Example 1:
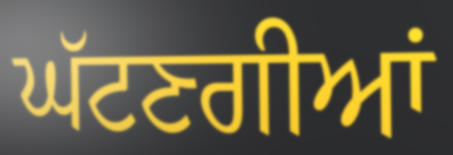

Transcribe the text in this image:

ਘੱਟਣਗੀਆਂ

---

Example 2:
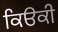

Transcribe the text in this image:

ਕਿੳਕੀ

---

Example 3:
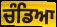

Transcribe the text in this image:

ਚੰਡਿਆ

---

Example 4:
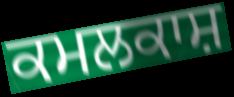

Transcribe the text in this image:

ਕਮਲਕਾਸ਼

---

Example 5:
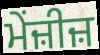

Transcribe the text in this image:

ਮੇਂਜ਼ੀਜ਼